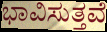
ಭಾವಿಸುತ್ತವೆ